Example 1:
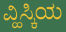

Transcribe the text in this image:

ವ್ಹಿಸ್ಕಿಯ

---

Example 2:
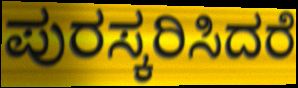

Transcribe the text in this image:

ಪುರಸ್ಕರಿಸಿದರೆ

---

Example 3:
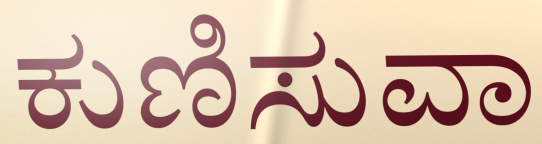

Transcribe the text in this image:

ಕುಣಿಸುವಾ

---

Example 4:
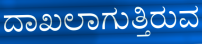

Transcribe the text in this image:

ದಾಖಲಾಗುತ್ತಿರುವ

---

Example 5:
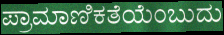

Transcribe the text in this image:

ಪ್ರಾಮಾಣಿಕತೆಯೆಂಬುದು